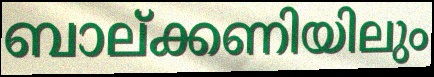
ബാല്ക്കണിയിലും